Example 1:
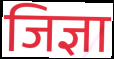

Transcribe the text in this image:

जिज्ञा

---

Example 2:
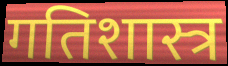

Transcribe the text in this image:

गतिशास्त्र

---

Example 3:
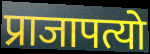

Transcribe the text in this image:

प्राजापत्यो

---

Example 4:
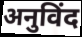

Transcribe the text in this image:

अनुविंद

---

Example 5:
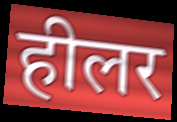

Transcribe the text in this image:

हीलर